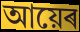
আয়েৰ